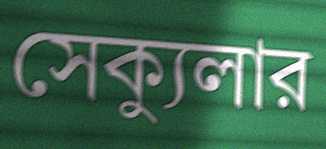
সেক্যুলার